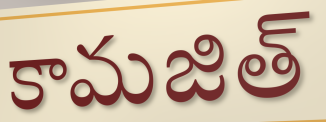
కామజిత్